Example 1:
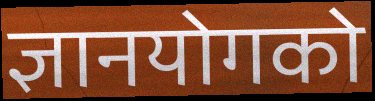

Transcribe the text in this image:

ज्ञानयोगको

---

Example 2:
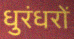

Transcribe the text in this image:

धुरंधरों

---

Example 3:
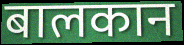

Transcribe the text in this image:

बालकान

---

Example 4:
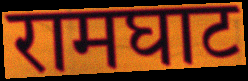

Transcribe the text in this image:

रामघाट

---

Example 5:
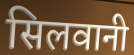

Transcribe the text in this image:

सिलवानी